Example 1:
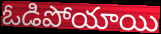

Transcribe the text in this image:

ఓడిపోయాయి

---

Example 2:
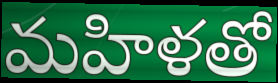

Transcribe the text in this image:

మహిళతో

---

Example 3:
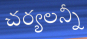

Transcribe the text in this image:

చర్యలన్నీ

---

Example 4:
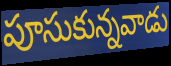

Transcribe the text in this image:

పూసుకున్నవాడు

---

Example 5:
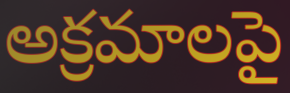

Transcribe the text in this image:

అక్రమాలపై